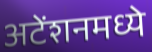
अटेंशनमध्ये